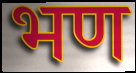
भण